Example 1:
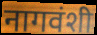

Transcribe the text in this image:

नागवंशी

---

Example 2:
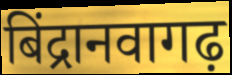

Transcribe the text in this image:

बिंद्रानवागढ़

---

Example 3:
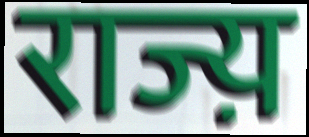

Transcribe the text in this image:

राज्य़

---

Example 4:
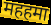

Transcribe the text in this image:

महहमा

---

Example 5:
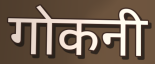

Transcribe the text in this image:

गोकनी